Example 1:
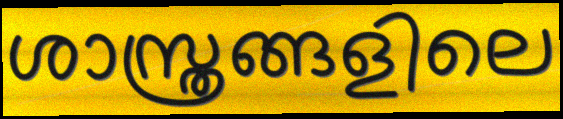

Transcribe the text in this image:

ശാസ്ത്രങ്ങളിലെ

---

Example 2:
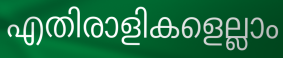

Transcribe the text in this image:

എതിരാളികളെല്ലാം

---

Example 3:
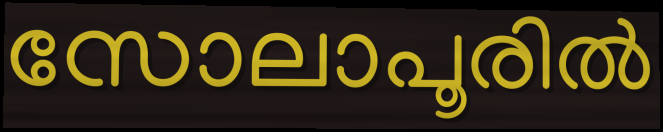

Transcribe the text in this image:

സോലാപൂരിൽ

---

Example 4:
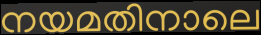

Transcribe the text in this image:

നയമതിനാലെ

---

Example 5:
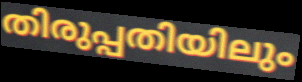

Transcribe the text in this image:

തിരുപ്പതിയിലും